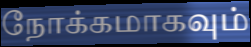
நோக்கமாகவும்